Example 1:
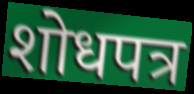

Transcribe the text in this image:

शोधपत्र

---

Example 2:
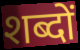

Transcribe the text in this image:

शब्‍दों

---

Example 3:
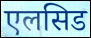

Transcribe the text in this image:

एलसिड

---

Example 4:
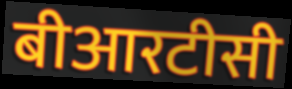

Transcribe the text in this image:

बीआरटीसी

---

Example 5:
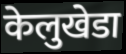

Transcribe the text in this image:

केलुखेडा